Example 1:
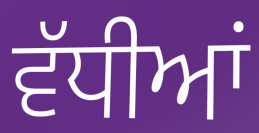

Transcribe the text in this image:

ਵੱਧੀਆਂ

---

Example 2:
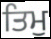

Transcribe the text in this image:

ਤਿਮੁ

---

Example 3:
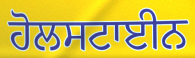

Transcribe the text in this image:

ਹੋਲਸਟਾਈਨ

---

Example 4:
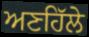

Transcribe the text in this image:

ਅਣਹਿੱਲੇ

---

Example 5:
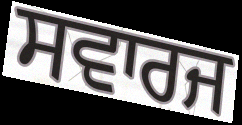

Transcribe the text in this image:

ਸਵਾਰਜ